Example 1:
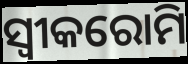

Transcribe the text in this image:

ସ୍ଵୀକରୋମି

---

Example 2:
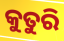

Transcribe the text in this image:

କୁତୁରି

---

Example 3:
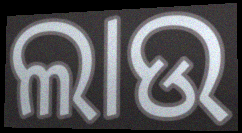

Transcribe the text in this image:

ଲାଉ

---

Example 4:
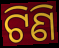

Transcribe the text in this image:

ଟିଣି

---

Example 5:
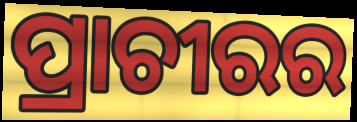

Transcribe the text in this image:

ପ୍ରାଚୀରର